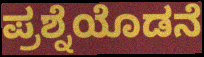
ಪ್ರಶ್ನೆಯೊಡನೆ